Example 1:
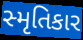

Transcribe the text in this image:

સ્મૃતિકાર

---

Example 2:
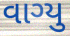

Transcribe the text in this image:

વાગ્યુ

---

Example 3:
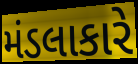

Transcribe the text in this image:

મંડલાકારે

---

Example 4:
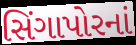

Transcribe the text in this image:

સિંગાપોરનાં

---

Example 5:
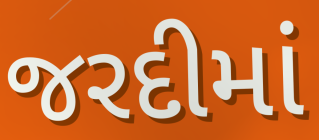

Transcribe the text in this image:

જરદીમાં